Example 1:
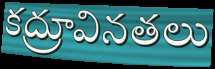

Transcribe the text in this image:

కద్రూవినతలు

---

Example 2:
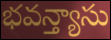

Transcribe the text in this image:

భవన్త్యాసు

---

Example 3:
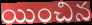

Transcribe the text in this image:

యించిన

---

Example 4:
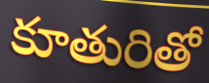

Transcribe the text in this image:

కూతురితో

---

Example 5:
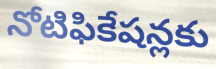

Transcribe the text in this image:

నోటిఫికేషన్లకు